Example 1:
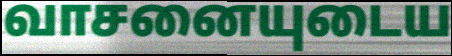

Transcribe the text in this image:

வாசனையுடைய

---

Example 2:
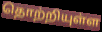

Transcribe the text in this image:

தொற்றியுள்ள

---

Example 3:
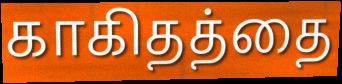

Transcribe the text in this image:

காகிதத்தை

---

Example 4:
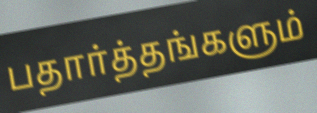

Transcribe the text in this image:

பதார்த்தங்களும்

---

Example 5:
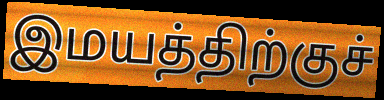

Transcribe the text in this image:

இமயத்திற்குச்